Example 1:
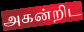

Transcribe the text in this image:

அகன்றிட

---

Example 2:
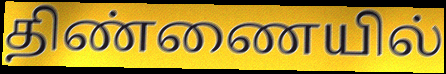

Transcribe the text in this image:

திண்ணையில்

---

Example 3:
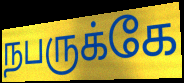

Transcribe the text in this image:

நபருக்கே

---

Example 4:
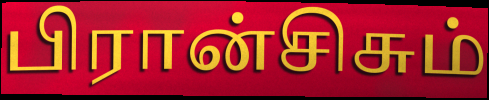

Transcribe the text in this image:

பிரான்சிசும்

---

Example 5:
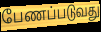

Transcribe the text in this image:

பேணப்படுவது